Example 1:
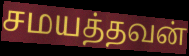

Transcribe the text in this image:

சமயத்தவன்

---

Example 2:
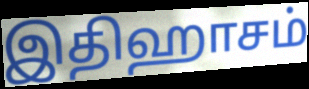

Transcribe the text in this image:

இதிஹாசம்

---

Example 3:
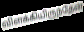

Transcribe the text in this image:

விளக்கியிருந்தேன்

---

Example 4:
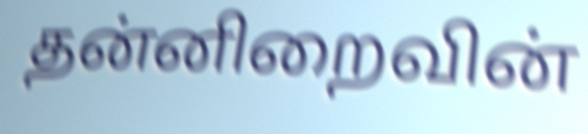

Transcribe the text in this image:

தன்னிறைவின்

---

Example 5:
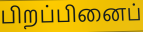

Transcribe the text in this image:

பிறப்பினைப்